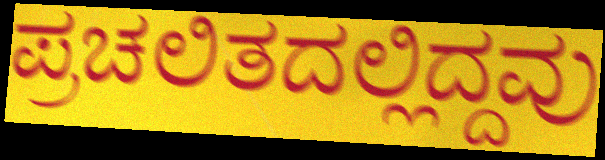
ಪ್ರಚಲಿತದಲ್ಲಿದ್ದವು